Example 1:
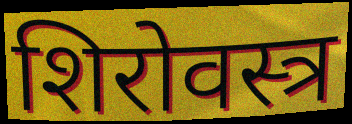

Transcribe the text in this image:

शिरोवस्त्र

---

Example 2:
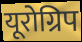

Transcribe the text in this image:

यूरोग्रिप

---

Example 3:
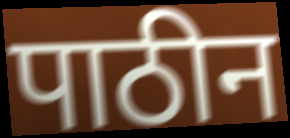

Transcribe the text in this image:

पाठीन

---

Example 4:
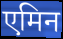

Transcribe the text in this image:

एमिन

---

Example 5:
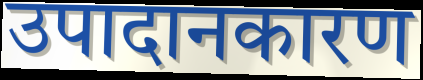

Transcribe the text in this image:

उपादानकारण